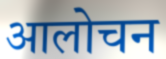
आलोचन